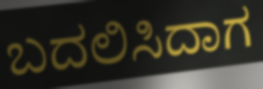
ಬದಲಿಸಿದಾಗ